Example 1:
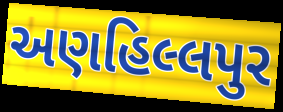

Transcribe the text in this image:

અણહિલ્લપુર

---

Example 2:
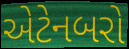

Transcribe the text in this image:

એટેનબરો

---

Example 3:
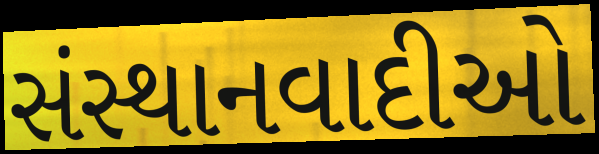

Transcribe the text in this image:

સંસ્થાનવાદીઓ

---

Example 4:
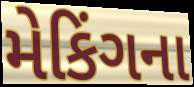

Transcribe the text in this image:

મેકિંગના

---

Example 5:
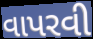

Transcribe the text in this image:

વાપરવી